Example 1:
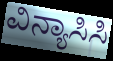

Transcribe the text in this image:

ವಿನ್ಯಾಸಿಸಿ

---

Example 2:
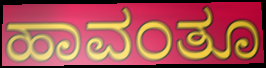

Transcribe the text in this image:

ಹಾವಂತೂ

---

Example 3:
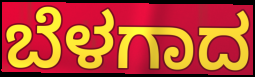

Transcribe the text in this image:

ಬೆಳಗಾದ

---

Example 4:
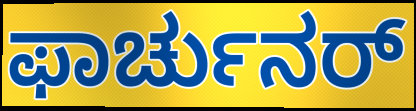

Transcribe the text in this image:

ಫಾರ್ಚುನರ್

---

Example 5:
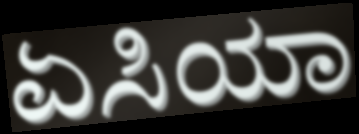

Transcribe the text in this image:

ಏಸಿಯಾ